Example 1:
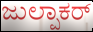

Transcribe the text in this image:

ಜುಲ್ಪಾಕರ್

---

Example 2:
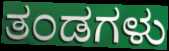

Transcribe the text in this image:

ತಂಡಗಳು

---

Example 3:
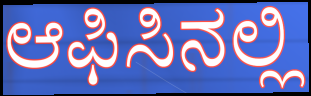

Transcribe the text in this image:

ಆಫಿಸಿನಲ್ಲಿ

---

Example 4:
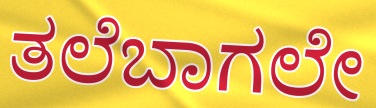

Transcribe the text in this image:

ತಲೆಬಾಗಲೇ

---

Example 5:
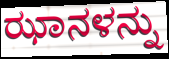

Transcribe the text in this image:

ಝಾನಳನ್ನು